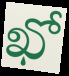
ఖో